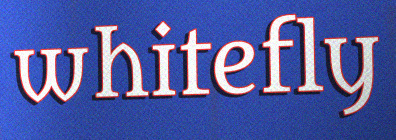
whitefly